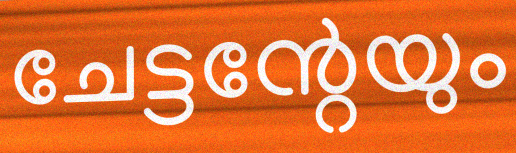
ചേട്ടന്റേയും